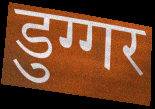
डुग्गर